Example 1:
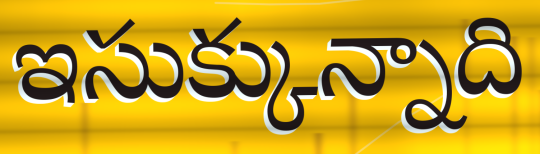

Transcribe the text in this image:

ఇసుక్కున్నాది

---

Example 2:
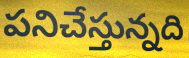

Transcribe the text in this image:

పనిచేస్తున్నది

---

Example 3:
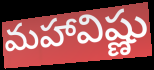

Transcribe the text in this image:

మహావిష్ణు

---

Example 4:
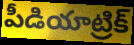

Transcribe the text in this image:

పీడియాట్రిక్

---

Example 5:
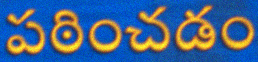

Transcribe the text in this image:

పఠించడం